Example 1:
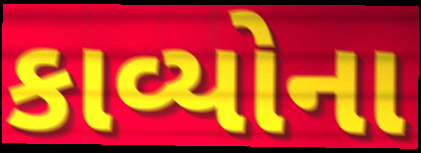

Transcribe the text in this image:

કાવ્યોના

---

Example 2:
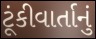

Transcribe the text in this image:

ટૂંકીવાર્તાનું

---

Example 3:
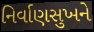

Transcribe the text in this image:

નિર્વાણસુખને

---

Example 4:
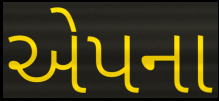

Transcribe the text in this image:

એપના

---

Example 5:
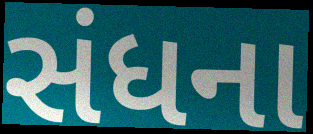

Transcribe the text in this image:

સંધના